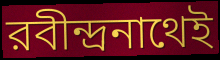
রবীন্দ্রনাথেই